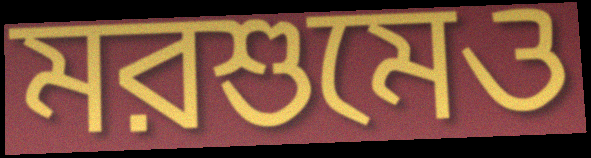
মরশুমেও